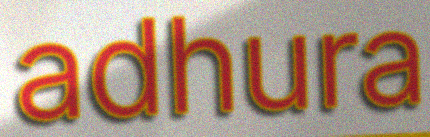
adhura